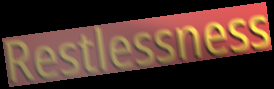
Restlessness